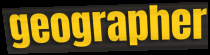
geographer